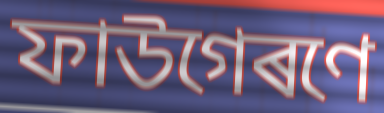
ফাউগেৰণে